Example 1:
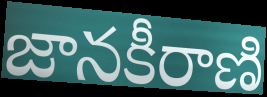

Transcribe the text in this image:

జానకీరాణి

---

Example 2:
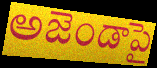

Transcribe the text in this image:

అజెండాపై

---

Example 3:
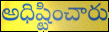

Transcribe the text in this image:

అధిష్టించారు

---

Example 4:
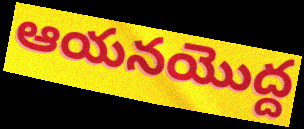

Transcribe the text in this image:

ఆయనయొద్ద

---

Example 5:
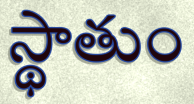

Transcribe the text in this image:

స్థాతుం